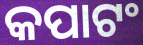
କପାଟଂ